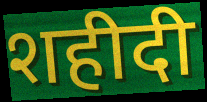
शहीदी